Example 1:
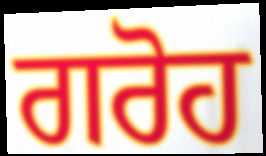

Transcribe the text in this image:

ਗਰੋਹ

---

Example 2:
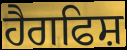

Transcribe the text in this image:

ਹੈਗਫਿਸ਼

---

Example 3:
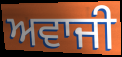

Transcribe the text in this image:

ਅਵਾਜੀ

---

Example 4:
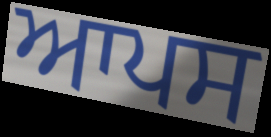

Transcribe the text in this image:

ਆਪਸ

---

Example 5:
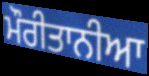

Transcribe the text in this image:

ਮੌਰੀਤਾਨੀਆ